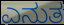
ಎನುತ